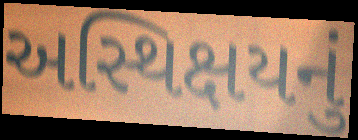
અસ્થિક્ષયનું